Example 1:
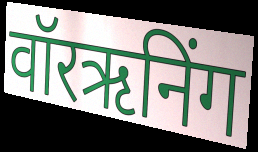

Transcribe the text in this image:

वॉरऋनिंग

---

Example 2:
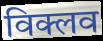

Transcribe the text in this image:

विक्लव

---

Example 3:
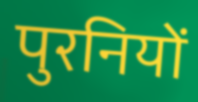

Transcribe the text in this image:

पुरनियों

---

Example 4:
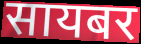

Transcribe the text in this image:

सायबर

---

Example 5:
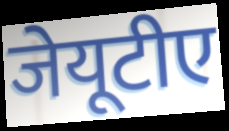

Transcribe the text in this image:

जेयूटीए